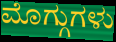
ಮೊಗ್ಗುಗಳು